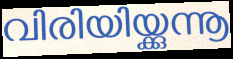
വിരിയിയ്ക്കുന്നൂ